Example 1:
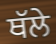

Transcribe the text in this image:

ਥੱਲੇ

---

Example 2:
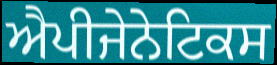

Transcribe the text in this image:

ਐਪੀਜੇਨੇਟਿਕਸ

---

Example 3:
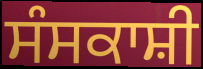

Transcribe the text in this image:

ਸੰਸਕਾਸ਼ੀ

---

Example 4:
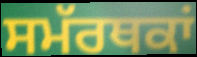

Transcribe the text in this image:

ਸਮੱਰਥਕਾਂ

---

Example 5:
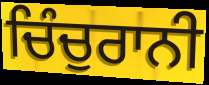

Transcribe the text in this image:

ਚਿੰਚੁਰਾਨੀ